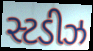
સ્ટડીઝ